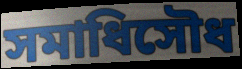
সমাধিসৌধ